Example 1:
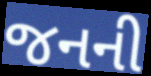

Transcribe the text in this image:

જનની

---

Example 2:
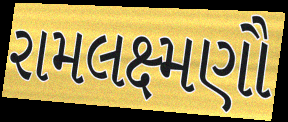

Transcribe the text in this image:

રામલક્ષ્મણૌ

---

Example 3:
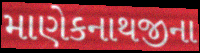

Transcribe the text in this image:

માણેકનાથજીના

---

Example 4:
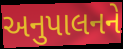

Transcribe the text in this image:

અનુપાલનને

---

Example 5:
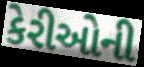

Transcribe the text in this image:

કેરીઓની